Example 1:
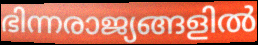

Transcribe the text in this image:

ഭിന്നരാജ്യങ്ങളിൽ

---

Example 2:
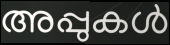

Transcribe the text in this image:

അപ്പുകൾ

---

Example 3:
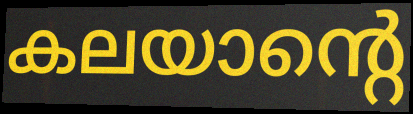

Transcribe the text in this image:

കലയാന്റെ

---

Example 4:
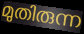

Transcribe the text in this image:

മുതിരുന്ന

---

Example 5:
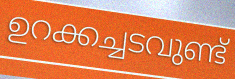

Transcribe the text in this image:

ഉറക്കച്ചടവുണ്ട്